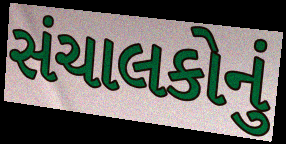
સંચાલકોનું